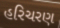
હરિચરણ